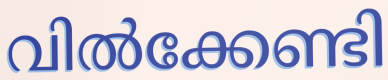
വിൽക്കേണ്ടി